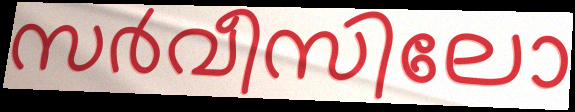
സർവീസിലോ